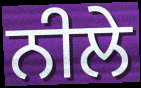
ਨੀਲੇ